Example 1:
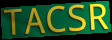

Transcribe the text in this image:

TACSR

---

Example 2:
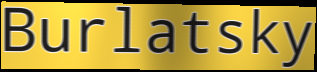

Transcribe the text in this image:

Burlatsky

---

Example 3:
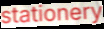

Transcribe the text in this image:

stationery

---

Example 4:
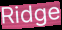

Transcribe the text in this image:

Ridge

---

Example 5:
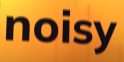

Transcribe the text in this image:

noisy